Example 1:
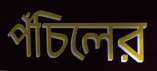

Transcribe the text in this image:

পঁচিলের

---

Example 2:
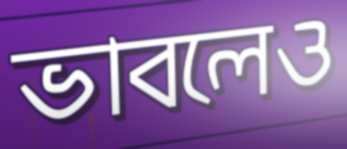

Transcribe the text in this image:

ভাবলেও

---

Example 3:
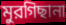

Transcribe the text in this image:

মুরগিছানা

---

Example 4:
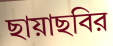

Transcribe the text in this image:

ছায়াছবির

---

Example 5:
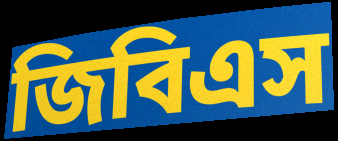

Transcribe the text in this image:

জিবিএস